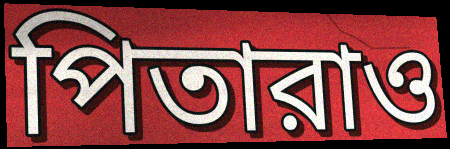
পিতারাও